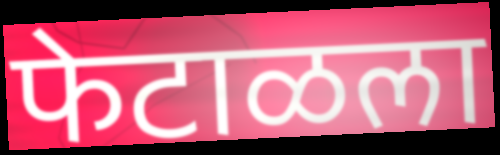
फेटाळला